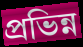
প্রভিন্ন